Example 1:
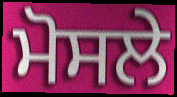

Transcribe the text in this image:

ਮੋਸਲੇ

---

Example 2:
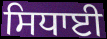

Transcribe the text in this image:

ਸਿਧਾਈ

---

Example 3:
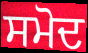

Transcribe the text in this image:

ਸਮੋਦ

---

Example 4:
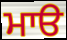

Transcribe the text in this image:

ਮਾੳ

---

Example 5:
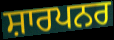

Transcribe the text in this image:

ਸ਼ਾਰਪਨਰ